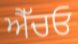
ਐੱਚਓ